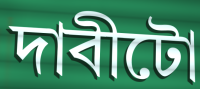
দাবীটো